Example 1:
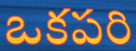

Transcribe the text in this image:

ఒకపరి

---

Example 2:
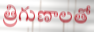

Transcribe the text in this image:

త్రిగుణాలతో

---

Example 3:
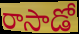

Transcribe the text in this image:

రాసాడో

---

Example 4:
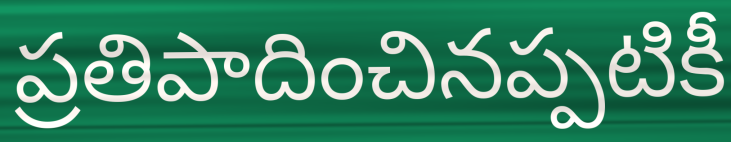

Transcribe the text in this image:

ప్రతిపాదించినప్పటికీ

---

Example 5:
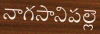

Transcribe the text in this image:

నాగసానిపల్లె